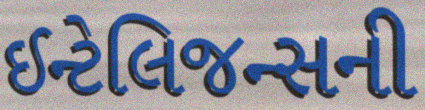
ઈન્ટેલિજન્સની